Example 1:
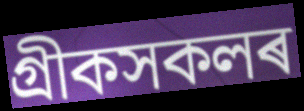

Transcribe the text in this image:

গ্ৰীকসকলৰ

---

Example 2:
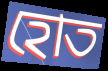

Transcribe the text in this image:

হোত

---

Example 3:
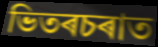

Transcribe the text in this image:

ভিতৰচৰাত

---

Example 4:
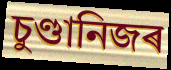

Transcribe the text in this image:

চুণ্ডানিজৰ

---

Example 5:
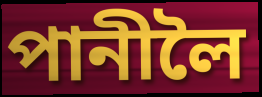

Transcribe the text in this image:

পানীলৈ